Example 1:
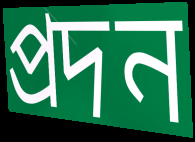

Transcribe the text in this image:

প্ৰদন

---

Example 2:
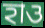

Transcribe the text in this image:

হাও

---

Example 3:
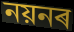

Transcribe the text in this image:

নয়নৰ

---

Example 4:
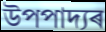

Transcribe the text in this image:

উপপাদ্যৰ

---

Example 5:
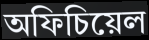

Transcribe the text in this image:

অফিচিয়েল